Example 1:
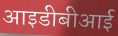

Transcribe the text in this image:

आइडीबीआई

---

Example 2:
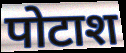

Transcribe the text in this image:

पोटाश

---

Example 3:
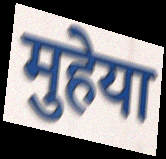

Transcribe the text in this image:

मुहेया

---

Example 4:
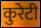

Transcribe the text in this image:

कुरेटी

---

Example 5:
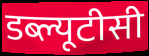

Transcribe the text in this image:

डब्ल्यूटीसी